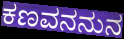
ಕಣವನನುನ